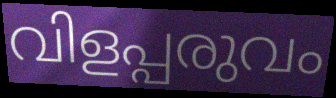
വിളപ്പരുവം